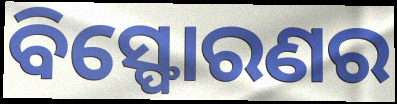
ବିସ୍ଫୋରଣର